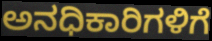
ಅನಧಿಕಾರಿಗಳಿಗೆ